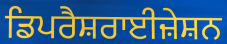
ਡਿਪਰੈਸ਼ਰਾਈਜ਼ੇਸ਼ਨ